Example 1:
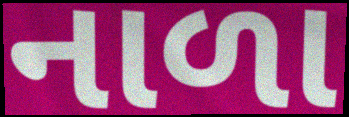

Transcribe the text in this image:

નાળા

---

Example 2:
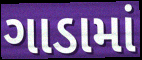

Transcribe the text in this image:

ગાડામાં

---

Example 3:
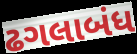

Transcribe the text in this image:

ઢગલાબંધ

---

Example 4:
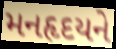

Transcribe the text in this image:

મનહૃદયને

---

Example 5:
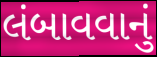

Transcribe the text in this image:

લંબાવવાનું